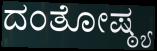
ದಂತೋಷ್ಠ್ಯ